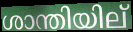
ശാന്തിയില്